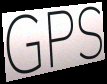
GPS